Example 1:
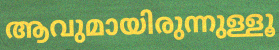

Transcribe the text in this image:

ആവുമായിരുന്നുള്ളൂ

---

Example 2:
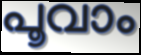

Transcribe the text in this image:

പൂവാം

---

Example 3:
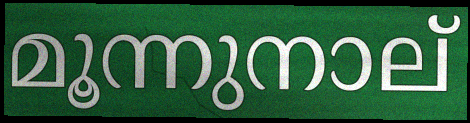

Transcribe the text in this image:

മൂന്നുനാല്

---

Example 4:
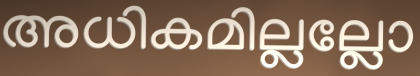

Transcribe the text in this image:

അധികമില്ലല്ലോ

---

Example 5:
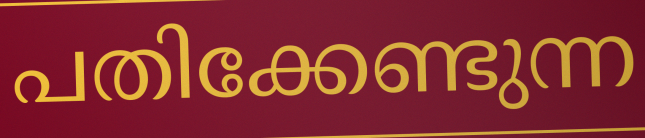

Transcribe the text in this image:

പതിക്കേണ്ടുന്ന